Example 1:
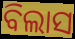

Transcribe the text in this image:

ବିଲାସ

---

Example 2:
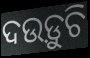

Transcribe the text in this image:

ଦଉଡ଼ୁଚି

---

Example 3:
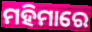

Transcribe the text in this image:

ମହିମାରେ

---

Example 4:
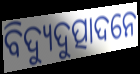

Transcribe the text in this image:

ବିଦ୍ଯୁଦୁତ୍ପାଦନେ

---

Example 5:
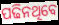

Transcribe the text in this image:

ପଢିନଥିବେ